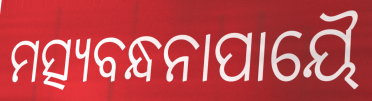
ମତ୍ସ୍ୟବନ୍ଧନାପାୟୈ